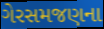
ગેરસમજણના